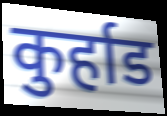
कुर्हाड